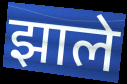
झाले